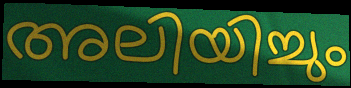
അലിയിച്ചും